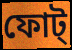
ফোট্